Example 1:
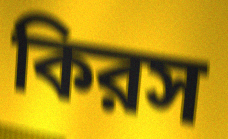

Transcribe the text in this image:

কিরস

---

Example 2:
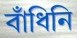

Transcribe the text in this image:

বাঁধিনি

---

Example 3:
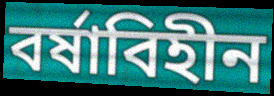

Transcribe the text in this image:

বর্ষাবিহীন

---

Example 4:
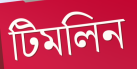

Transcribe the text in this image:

টিমলিন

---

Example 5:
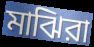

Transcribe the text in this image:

মাঝিরা